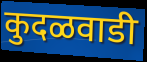
कुदळवाडी